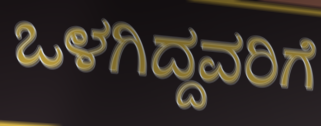
ಒಳಗಿದ್ದವರಿಗೆ